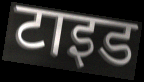
टाइड